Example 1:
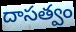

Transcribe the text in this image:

దాసత్వం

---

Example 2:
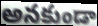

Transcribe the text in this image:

అనకుండా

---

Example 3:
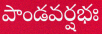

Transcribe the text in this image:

పాండవర్షభః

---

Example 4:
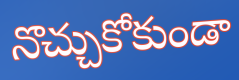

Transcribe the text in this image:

నొచ్చుకోకుండా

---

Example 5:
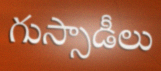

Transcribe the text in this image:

గుస్సాడీలు